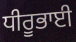
ਧੀਰੂਭਾਈ